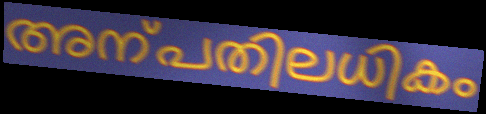
അന്പതിലധികം